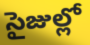
సైజుల్లో